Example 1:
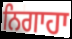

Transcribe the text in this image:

ਨਿਗਾਹਾ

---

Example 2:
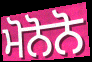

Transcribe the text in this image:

ਮੋਨੋਨੋ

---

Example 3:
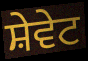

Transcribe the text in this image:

ਸ਼ੇਵੇਟ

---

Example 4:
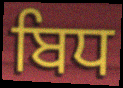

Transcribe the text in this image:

ਬਿਧ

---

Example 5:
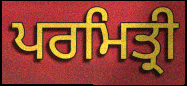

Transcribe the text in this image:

ਪਰਮਿਤ੍ਰੀ